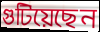
গুটিয়েছেন